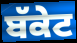
ਬੱਕੇਟ